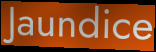
Jaundice